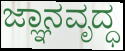
ಜ್ಞಾನವೃದ್ಧ